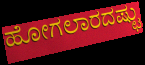
ಹೋಗಲಾರದಷ್ಟು